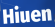
Hiuen